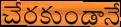
చేరకుండానే